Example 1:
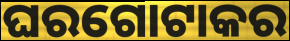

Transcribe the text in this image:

ଘରଗୋଟାକର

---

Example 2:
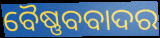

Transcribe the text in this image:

ବୈଷ୍ଣବବାଦର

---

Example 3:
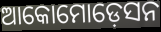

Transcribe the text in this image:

ଆକୋମୋଡ଼େସନ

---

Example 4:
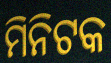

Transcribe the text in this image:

ମିନିଟକ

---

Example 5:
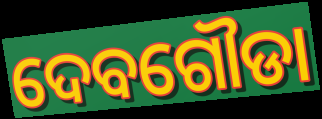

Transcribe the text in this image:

ଦେବଗୌଡା